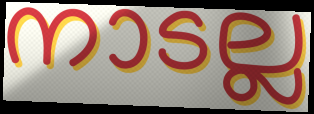
നാടല്ല